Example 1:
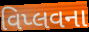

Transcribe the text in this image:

વિપ્લવના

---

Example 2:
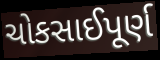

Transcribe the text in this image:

ચોકસાઈપૂર્ણ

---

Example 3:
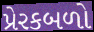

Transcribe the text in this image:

પ્રેરકબળો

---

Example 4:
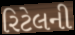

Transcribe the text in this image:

રિટેલની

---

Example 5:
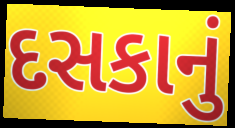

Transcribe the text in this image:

દસકાનું